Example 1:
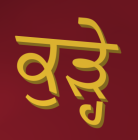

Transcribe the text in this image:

ਕੁੜ੍ਹੇ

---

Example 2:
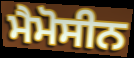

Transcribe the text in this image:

ਮੈਮੋਸੀਨ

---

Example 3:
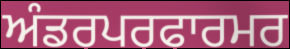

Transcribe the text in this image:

ਅੰਡਰਪਰਫਾਰਮਰ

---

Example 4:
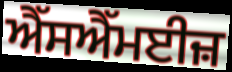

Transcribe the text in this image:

ਐੱਸਐੱਮਈਜ਼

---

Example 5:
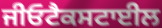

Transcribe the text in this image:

ਜੀਓਟੈਕਸਟਾਈਲ